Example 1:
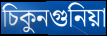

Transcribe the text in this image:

চিকুনগুনিয়া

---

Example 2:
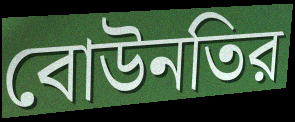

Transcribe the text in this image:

বোউনতির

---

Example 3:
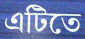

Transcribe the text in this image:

এটিতে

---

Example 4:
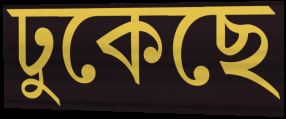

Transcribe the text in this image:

ঢুকেছে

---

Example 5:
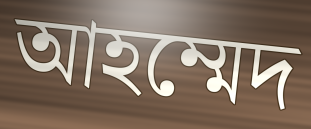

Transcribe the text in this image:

আহম্মেদ